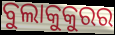
ବୁଲାକୁକୁରର